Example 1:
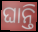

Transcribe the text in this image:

ଘାନ୍ତି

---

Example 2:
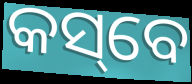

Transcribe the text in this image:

କସ୍‌ବେ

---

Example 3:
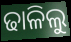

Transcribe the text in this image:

ଢାଳିଲୁ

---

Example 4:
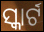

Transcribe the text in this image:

ସ୍କାର୍ଟ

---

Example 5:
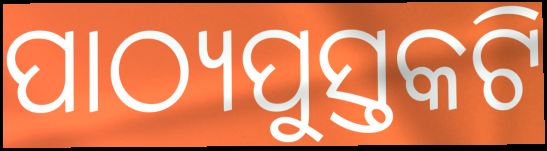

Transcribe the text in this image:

ପାଠ୍ୟପୁସ୍ତକଟି